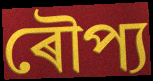
ৰৌপ্য